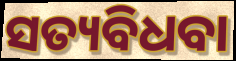
ସତ୍ୟବିଧବା